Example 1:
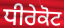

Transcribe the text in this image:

ਧੀਰੇਕੋਟ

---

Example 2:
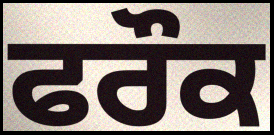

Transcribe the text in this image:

ਫਰੌਕ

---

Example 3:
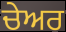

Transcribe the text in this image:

ਚੇਅਰ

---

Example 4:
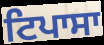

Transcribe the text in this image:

ਟਿਪਾਸਾ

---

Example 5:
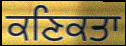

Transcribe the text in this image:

ਕਣਿਕਤਾ